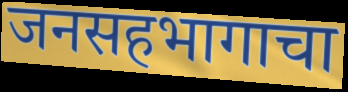
जनसहभागाचा